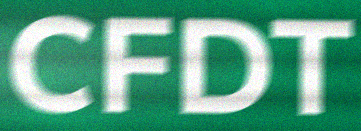
CFDT